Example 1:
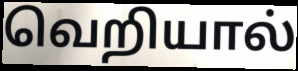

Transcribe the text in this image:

வெறியால்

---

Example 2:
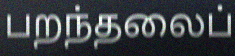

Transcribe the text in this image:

பறந்தலைப்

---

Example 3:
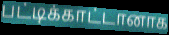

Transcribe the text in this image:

பட்டிக்காட்டானாக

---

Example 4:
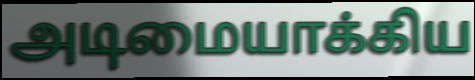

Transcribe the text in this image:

அடிமையாக்கிய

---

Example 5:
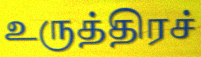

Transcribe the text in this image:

உருத்திரச்